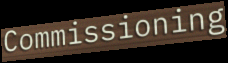
Commissioning